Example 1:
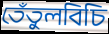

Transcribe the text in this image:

তেঁতুলবিচি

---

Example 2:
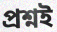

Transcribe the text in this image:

প্রশ্নই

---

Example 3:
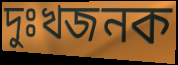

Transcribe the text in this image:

দুঃখজনক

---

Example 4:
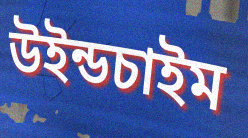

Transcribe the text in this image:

উইন্ডচাইম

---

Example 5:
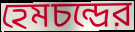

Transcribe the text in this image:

হেমচন্দ্রের